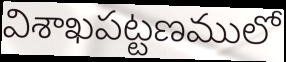
విశాఖపట్టణములో